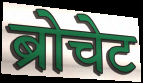
ब्रोचेट